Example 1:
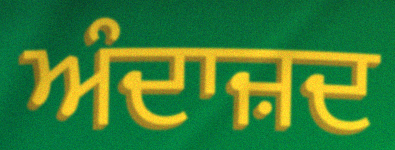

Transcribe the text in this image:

ਅੰਦਾਜ਼ਦ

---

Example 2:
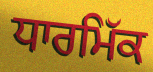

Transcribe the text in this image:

ਧਾਰਮਿੱਕ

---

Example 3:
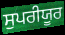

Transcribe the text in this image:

ਸੁਪਰੀਯੂਰ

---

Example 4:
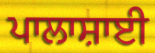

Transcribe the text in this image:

ਪਾਲਾਸ਼ਾਈ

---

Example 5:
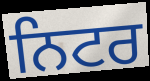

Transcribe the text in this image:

ਨਿਟਰ